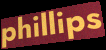
phillips